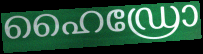
ഹൈഡ്രോ